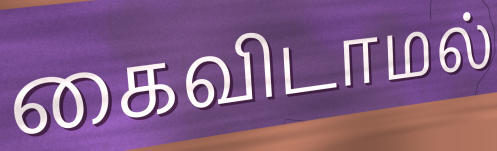
கைவிடாமல்